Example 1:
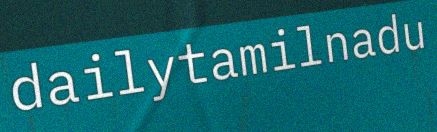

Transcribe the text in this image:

dailytamilnadu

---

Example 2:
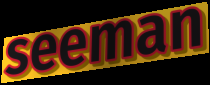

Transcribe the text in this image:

seeman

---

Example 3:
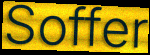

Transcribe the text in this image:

Soffer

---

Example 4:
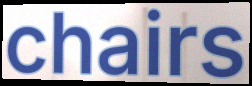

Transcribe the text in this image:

chairs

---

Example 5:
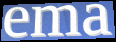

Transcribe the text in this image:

ema